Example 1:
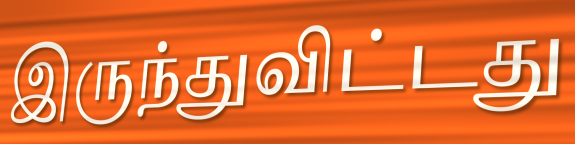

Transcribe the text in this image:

இருந்துவிட்டது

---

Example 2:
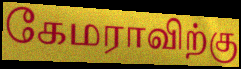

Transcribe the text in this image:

கேமராவிற்கு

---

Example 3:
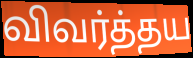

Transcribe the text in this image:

விவர்த்தய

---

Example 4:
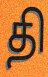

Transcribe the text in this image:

தி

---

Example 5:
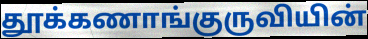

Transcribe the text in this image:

தூக்கணாங்குருவியின்